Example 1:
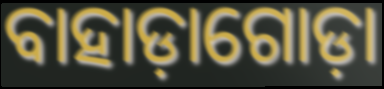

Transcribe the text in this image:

ବାହାଡ଼ାଗୋଡ଼ା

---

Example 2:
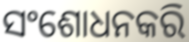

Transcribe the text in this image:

ସଂଶୋଧନକରି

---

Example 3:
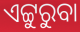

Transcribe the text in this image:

ଏଟ୍ଟୁରୁବା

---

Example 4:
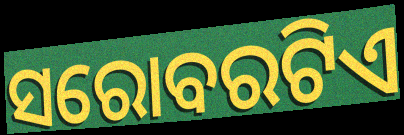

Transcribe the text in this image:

ସରୋବରଟିଏ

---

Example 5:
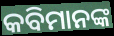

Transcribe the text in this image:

କବିମାନଙ୍କ